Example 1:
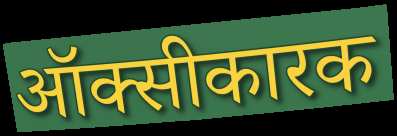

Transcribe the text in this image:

ऑक्सीकारक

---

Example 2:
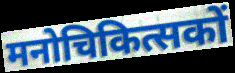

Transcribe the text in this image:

मनोचिकित्सकों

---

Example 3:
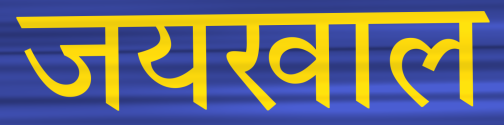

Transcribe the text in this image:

जयखाल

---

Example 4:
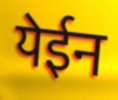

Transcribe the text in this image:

येईन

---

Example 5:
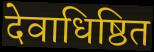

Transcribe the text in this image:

देवाधिष्ठित